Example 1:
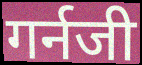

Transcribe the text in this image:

गर्नजी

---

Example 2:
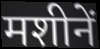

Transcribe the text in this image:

मशीनें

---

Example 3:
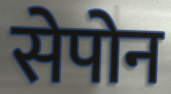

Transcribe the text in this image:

सेपोन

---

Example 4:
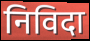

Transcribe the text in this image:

निविदा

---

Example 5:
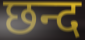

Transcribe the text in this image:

छन्‍द